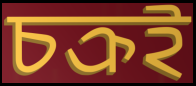
চক্ৰই